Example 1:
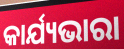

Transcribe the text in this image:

କାର୍ଯ୍ୟଭାରା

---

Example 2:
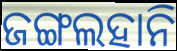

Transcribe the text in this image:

ଜଙ୍ଗଲହାନି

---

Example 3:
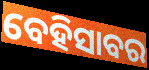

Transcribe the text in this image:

ବେହିସାବର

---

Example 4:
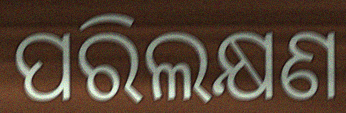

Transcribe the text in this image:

ପରିଲକ୍ଷଣ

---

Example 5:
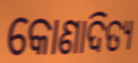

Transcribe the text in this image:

କୋଣାଦିତ୍ୟ